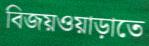
বিজয়ওয়াড়াতে